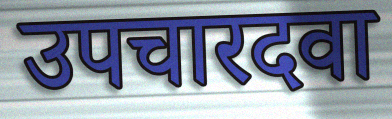
उपचारदवा